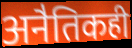
अनैतिकही